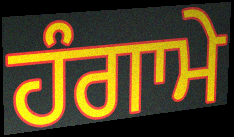
ਹੰਗਾਮੇ